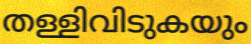
തള്ളിവിടുകയും